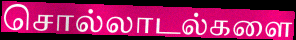
சொல்லாடல்களை